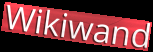
Wikiwand